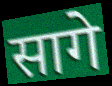
सागे